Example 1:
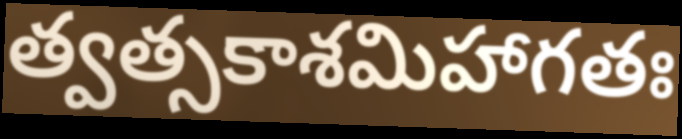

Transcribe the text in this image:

త్వత్సకాశమిహాగతః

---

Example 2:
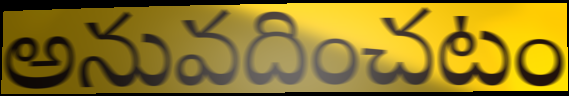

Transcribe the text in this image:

అనువదించటం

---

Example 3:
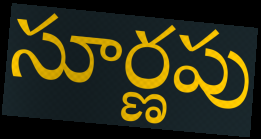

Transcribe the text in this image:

సూర్ణపు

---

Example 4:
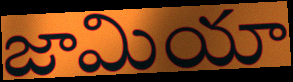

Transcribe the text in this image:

జామియా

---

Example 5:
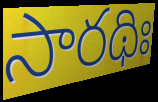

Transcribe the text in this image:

సారథిః